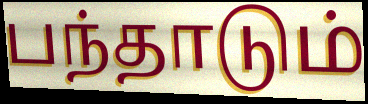
பந்தாடும்